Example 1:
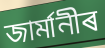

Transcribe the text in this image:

জাৰ্মানীৰ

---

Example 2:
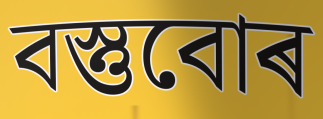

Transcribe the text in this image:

বস্তুবোৰ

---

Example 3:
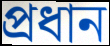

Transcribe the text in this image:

প্ৰধান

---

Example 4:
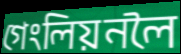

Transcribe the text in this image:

গেংলিয়নলৈ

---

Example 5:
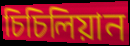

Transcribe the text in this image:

চিচিলিয়ান